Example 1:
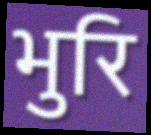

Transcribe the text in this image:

भुरि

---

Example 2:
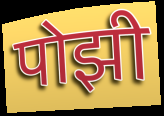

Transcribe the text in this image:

पोझी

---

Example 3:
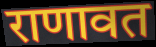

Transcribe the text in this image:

राणावत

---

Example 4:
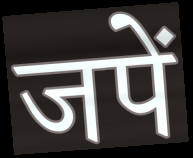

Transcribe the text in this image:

जपें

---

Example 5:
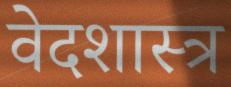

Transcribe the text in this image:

वेदशास्त्र